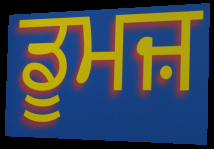
ਡੂਮਜ਼